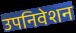
उपनिवेशन